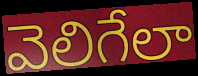
వెలిగేలా